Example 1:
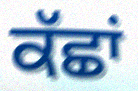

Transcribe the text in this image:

ਕੱਛਾਂ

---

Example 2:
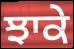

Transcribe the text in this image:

ਝਾਕੇ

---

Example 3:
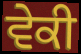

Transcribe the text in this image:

ਵੇਕੀ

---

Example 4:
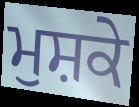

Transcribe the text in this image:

ਮੁਸ਼ਕੇ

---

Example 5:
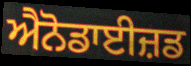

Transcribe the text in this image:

ਐਨੋਡਾਈਜ਼ਡ